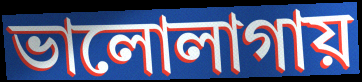
ভালোলাগায়